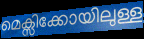
മെക്സിക്കോയിലുള്ള